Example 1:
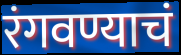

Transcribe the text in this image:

रंगवण्याचं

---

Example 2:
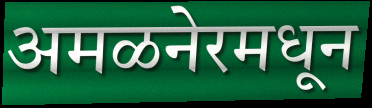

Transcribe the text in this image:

अमळनेरमधून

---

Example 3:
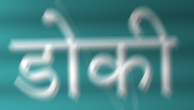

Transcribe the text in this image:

डोकी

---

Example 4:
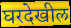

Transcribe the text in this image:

घरदेखील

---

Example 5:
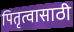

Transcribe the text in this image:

पितृत्वासाठी